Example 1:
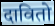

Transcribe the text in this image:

दावितो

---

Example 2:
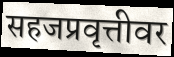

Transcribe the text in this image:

सहजप्रवृत्तीवर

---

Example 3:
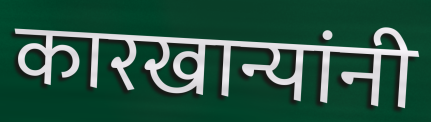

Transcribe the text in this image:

कारखान्यांनी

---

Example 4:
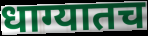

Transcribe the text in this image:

धाग्यातच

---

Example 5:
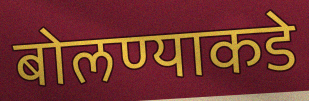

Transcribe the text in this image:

बोलण्याकडे